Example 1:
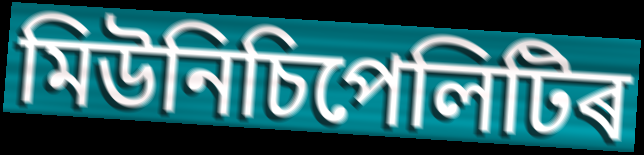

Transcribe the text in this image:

মিউনিচিপেলিটিৰ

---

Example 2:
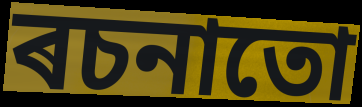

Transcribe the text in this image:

ৰচনাতো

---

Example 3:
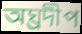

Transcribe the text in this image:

অঘ্ৰদীপ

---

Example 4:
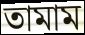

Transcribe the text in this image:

তামাম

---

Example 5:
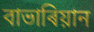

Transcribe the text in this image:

বাভাৰিয়ান